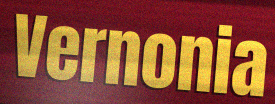
Vernonia